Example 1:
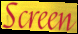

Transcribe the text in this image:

Screen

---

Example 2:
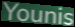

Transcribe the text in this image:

Younis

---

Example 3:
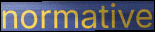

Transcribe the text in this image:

normative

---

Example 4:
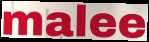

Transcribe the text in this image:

malee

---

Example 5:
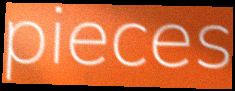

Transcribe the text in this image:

pieces